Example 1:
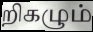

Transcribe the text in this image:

றிகழும்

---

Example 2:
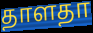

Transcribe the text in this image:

தாளதா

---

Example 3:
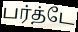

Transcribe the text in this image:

பர்த்டே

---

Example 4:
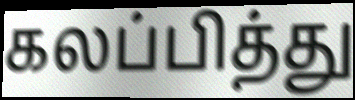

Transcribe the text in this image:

கலப்பித்து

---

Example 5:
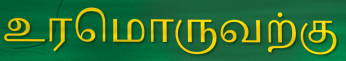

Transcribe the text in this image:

உரமொருவற்கு